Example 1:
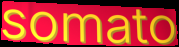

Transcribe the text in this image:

somato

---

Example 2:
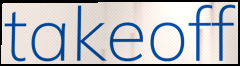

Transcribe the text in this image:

takeoff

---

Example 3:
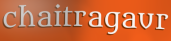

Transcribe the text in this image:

chaitragaur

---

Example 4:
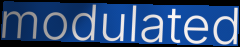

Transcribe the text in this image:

modulated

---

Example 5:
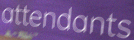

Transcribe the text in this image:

attendants